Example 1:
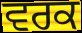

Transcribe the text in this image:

ਵਰਕ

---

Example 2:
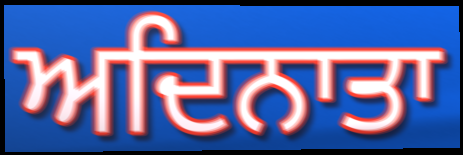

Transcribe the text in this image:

ਅਦਿਨਾਤਾ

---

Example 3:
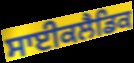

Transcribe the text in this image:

ਸਾਈਕਲੈਡਿਕ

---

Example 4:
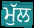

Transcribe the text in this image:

ਮੁੱਲ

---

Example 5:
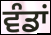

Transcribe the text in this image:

ਵੰਡਾਂ